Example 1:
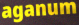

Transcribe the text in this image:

aganum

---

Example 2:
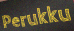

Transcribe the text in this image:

Perukku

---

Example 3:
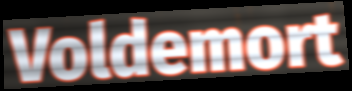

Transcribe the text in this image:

Voldemort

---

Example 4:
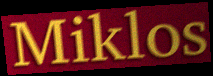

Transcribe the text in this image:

Miklos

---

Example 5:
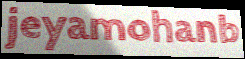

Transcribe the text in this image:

jeyamohanb